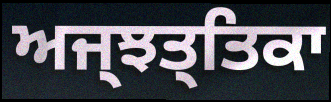
ਅਜ੍ਝਤ੍ਤਿਕਾ